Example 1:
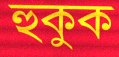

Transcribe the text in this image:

হুকুক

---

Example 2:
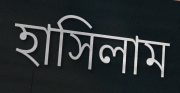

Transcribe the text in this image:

হাসিলাম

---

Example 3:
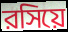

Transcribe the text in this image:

রসিয়ে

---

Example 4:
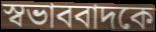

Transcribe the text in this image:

স্বভাববাদকে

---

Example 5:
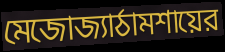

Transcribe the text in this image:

মেজোজ্যাঠামশায়ের